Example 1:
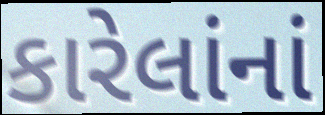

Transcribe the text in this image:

કારેલાંનાં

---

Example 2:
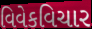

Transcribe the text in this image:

વિવેકવિચાર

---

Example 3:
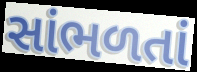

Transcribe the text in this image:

સાંભળતાં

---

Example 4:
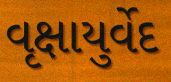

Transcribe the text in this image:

વૃક્ષાયુર્વેદ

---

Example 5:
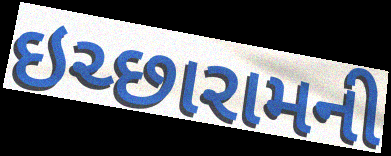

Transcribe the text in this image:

ઇચ્છારામની